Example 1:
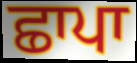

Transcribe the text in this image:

ਛਾਪਾ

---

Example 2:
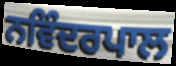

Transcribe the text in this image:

ਨਵਿੰਦਰਪਾਲ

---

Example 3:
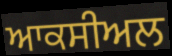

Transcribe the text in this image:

ਆਕਸੀਅਲ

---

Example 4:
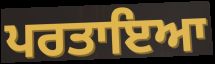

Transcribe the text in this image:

ਪਰਤਾਇਆ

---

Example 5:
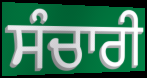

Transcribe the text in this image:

ਸੰਚਾਰੀ